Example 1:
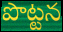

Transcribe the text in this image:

పొట్టన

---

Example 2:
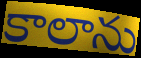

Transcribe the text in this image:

కాలాను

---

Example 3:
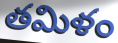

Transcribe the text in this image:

తమిళం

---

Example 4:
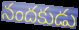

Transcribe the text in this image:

నందకుడు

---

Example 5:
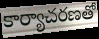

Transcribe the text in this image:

కార్యాచరణతో